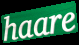
haare